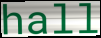
hall